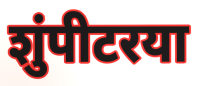
शुंपीटरया